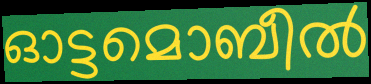
ഓട്ടമൊബീൽ